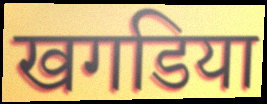
खगडिया